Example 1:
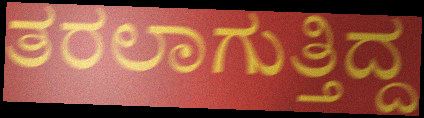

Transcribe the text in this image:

ತರಲಾಗುತ್ತಿದ್ದ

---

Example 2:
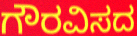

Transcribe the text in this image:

ಗೌರವಿಸದ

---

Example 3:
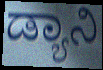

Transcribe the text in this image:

ಡ್ಯಾನಿ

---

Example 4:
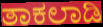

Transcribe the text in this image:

ತಾಕಲಾಡಿ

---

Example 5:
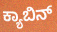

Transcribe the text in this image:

ಕ್ಯಾಬಿನ್